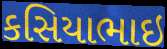
કસિયાભાઇ